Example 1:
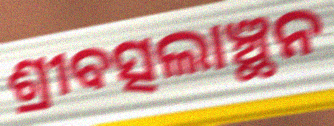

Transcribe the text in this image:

ଶ୍ରୀବତ୍ସଲାଞ୍ଛନ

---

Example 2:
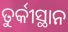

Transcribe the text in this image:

ତୁର୍କୀସ୍ଥାନ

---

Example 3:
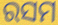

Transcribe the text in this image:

ରସମ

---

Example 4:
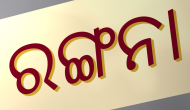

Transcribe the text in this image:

ରଙ୍ଗନା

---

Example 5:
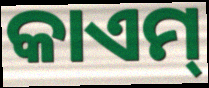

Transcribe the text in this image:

କାଏମ୍